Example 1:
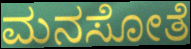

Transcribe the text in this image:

ಮನಸೋತೆ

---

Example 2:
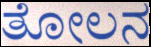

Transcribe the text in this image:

ತೋಲನ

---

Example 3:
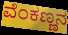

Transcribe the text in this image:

ವೆಂಕಣ್ಣನ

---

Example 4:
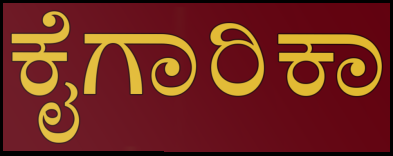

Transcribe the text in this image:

ಕೈಗಾರಿಕಾ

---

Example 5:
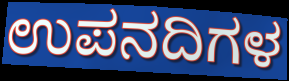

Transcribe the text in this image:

ಉಪನದಿಗಳ